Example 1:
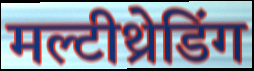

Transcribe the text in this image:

मल्टीथ्रेडिंग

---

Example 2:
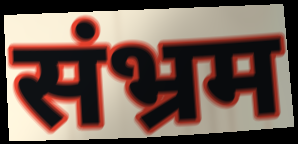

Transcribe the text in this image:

संभ्रम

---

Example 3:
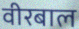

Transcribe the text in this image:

वीरबाल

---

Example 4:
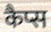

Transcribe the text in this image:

कैप्स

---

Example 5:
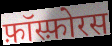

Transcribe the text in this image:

फ़ॉस्फ़ोरस